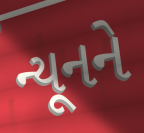
ન્યૂનને